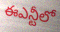
ఈఎన్టీలో